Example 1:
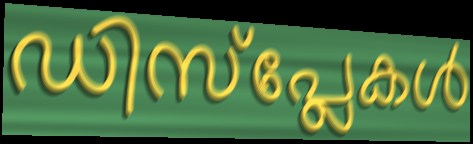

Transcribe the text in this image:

ഡിസ്പ്ലേകൾ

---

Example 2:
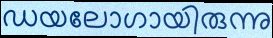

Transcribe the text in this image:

ഡയലോഗായിരുന്നു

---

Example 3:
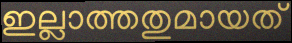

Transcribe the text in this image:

ഇല്ലാത്തതുമായത്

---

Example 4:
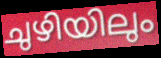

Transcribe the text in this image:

ചുഴിയിലും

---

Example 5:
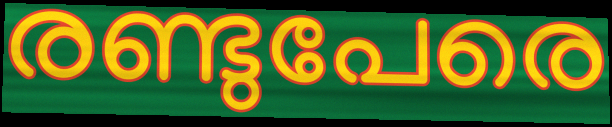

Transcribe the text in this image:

രണ്ടുപേരെ